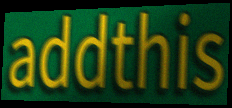
addthis